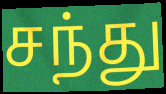
சந்து